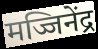
मज्जिनेंद्र